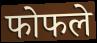
फोफले